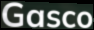
Gasco